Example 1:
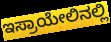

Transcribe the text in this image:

ಇಸ್ರಾಯೇಲಿನಲ್ಲಿ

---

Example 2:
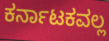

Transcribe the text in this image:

ಕರ್ನಾಟಕವಲ್ಲ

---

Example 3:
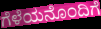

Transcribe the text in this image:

ಗೆಳೆಯನೊಂದಿಗೆ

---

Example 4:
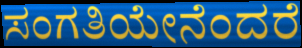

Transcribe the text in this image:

ಸಂಗತಿಯೇನೆಂದರೆ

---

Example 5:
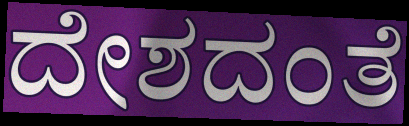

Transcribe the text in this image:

ದೇಶದಂತೆ